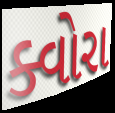
ક્વોરા